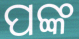
ପଙ୍କ